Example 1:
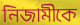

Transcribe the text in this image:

নিজামীকে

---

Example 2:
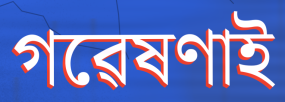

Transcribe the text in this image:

গৱেষণাই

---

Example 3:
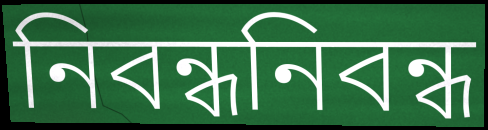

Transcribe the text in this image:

নিবন্ধনিবন্ধ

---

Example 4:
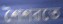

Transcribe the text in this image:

শৈশৱতে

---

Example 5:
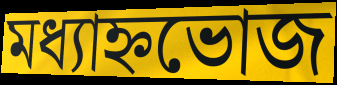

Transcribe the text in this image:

মধ্যাহ্নভোজ